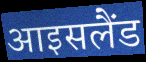
आइसलैंड